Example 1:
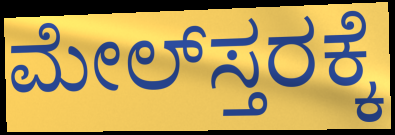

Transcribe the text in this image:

ಮೇಲ್‌ಸ್ತರಕ್ಕೆ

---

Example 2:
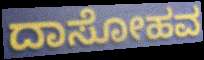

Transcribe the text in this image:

ದಾಸೋಹವ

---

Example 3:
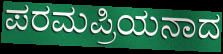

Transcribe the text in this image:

ಪರಮಪ್ರಿಯನಾದ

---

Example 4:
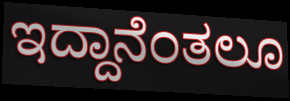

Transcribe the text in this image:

ಇದ್ದಾನೆಂತಲೂ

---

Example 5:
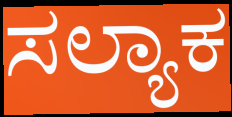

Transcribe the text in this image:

ಸಲ್ಯಾಕ